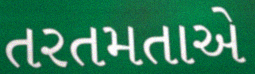
તરતમતાએ